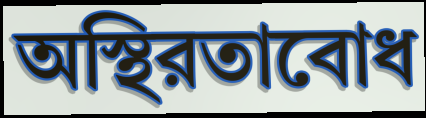
অস্থিরতাবোধ